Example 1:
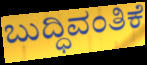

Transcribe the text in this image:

ಬುದ್ಧಿವಂತಿಕೆ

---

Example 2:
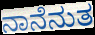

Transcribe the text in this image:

ನಾನೆನುತ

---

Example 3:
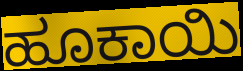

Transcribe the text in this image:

ಹೂಕಾಯಿ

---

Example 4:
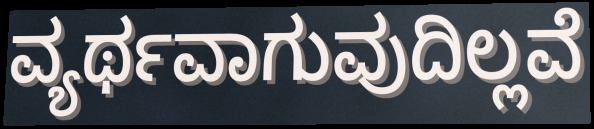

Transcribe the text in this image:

ವ್ಯರ್ಥವಾಗುವುದಿಲ್ಲವೆ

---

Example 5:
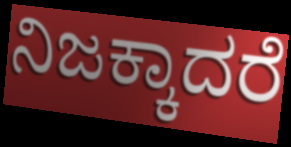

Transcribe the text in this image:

ನಿಜಕ್ಕಾದರೆ